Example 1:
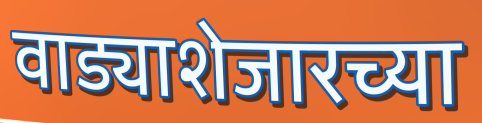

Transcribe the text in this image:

वाड्याशेजारच्या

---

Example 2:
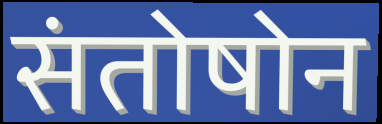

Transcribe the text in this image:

संतोषोन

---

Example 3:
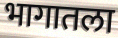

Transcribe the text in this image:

भागातला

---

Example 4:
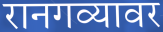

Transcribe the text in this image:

रानगव्यावर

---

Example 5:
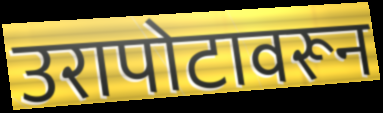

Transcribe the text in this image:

उरापोटावरून